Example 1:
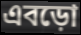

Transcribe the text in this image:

এবড়ো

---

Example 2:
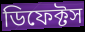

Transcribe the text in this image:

ডিফেক্টস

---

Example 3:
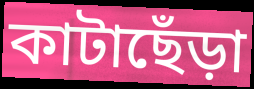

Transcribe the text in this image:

কাটাছেঁড়া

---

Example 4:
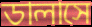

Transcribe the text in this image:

ডালাসে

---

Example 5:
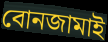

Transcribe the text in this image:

বোনজামাই